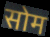
सोम